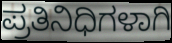
ಪ್ರತಿನಿಧಿಗಳಾಗಿ